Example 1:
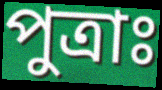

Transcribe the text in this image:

পুত্রাঃ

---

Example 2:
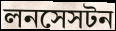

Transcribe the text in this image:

লনসেসটন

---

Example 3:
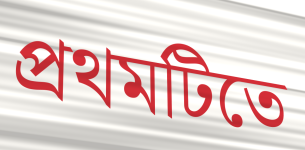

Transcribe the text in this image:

প্রথমটিতে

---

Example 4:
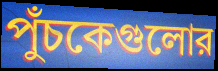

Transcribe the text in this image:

পুঁচকেগুলোর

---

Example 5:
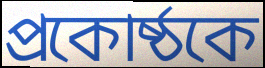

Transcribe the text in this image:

প্রকোষ্ঠকে